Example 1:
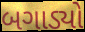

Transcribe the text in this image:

બગાડ્યો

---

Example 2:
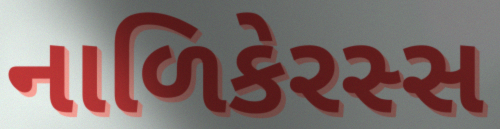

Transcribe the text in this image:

નાળિકેરસ્સ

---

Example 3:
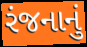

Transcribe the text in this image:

રંજનાનું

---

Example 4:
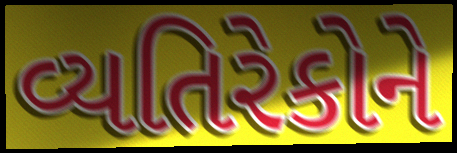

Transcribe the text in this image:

વ્યતિરેકોને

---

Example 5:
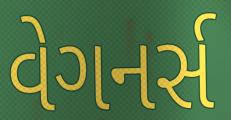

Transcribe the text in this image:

વેગનર્સ